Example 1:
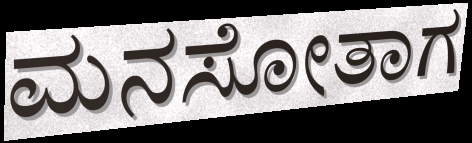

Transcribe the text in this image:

ಮನಸೋತಾಗ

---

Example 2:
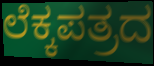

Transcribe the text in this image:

ಲೆಕ್ಕಪತ್ರದ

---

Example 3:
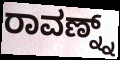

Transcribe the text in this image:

ರಾವಣ್ನ್ನ್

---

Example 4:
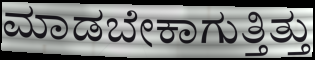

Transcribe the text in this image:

ಮಾಡಬೇಕಾಗುತ್ತಿತ್ತು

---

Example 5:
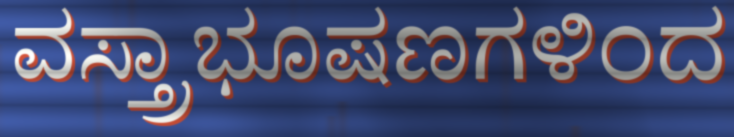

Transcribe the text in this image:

ವಸ್ತ್ರಾಭೂಷಣಗಳಿಂದ